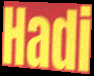
Hadi